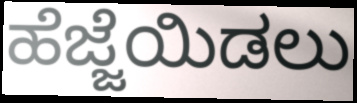
ಹೆಜ್ಜೆಯಿಡಲು